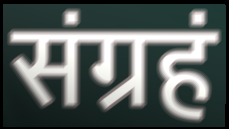
संग्रहं